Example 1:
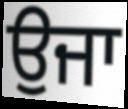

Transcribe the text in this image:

ਉਜਾ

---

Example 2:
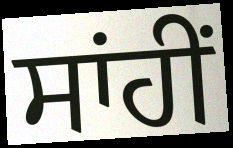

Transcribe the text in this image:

ਸਾਂਹੀਂ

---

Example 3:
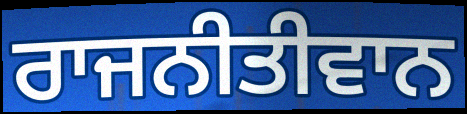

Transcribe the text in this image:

ਰਾਜਨੀਤੀਵਾਨ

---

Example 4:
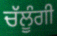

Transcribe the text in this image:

ਚੱਲੂੰਗੀ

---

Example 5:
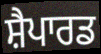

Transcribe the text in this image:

ਸ਼ੈਪਾਰਡ